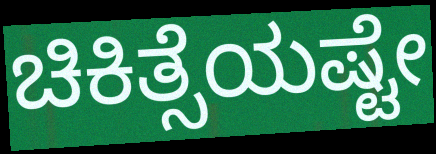
ಚಿಕಿತ್ಸೆಯಷ್ಟೇ